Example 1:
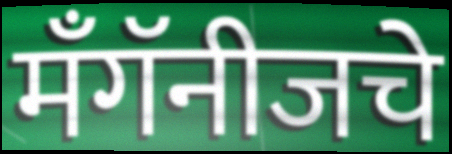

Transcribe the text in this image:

मँगॅनीजचे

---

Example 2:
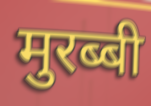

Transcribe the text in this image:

मुरब्बी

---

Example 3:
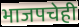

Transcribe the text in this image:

भाजपचेही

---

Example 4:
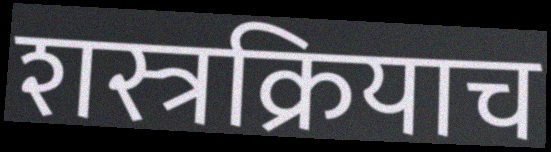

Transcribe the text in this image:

शस्त्रक्रियाच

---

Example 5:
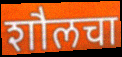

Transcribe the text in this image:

शौलचा